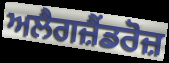
ਅਲੈਗਜ਼ੈਂਡਰੋਜ਼